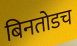
बिनतोडच